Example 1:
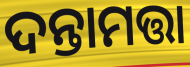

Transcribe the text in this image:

ଦନ୍ତାମତ୍ତା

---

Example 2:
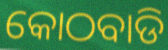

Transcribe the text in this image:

କୋଠବାଡି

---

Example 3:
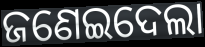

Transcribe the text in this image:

ଜଣେଇଦେଲା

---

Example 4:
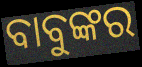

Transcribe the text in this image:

ବାବୁଙ୍କର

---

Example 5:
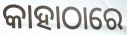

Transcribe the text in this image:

କାହାଠାରେ